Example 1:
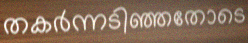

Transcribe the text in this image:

തകർന്നടിഞ്ഞതോടെ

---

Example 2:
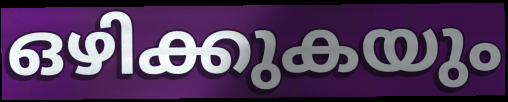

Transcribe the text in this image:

ഒഴിക്കുകയും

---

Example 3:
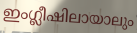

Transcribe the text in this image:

ഇംഗ്ലീഷിലായാലും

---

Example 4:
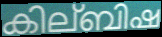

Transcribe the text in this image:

കില്ബിഷ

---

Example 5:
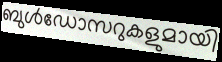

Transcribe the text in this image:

ബുൾഡോസറുകളുമായി